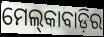
ମେଲ୍‍କାବାଡ଼ିର